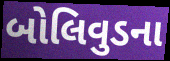
બોલિવુડના